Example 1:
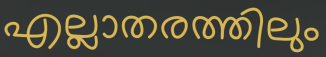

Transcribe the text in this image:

എല്ലാതരത്തിലും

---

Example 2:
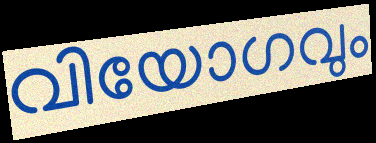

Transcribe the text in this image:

വിയോഗവും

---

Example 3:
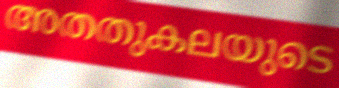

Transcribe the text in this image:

അതതുകലയുടെ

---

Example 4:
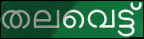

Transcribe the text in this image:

തലവെട്ട്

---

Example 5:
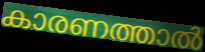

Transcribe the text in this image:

കാരണത്താൽ